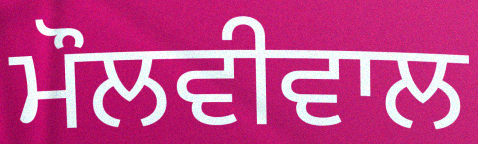
ਮੌਲਵੀਵਾਲ